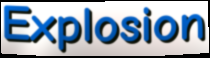
Explosion